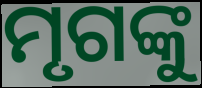
ମୃଗଙ୍କୁ